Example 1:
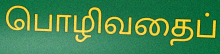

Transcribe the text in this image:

பொழிவதைப்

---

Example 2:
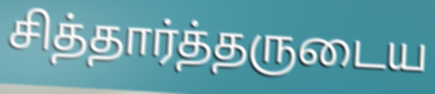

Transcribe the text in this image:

சித்தார்த்தருடைய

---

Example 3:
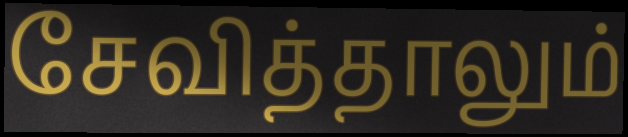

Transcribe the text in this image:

சேவித்தாலும்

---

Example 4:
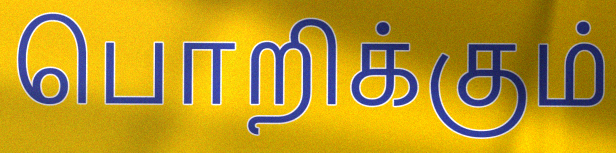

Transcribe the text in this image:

பொறிக்கும்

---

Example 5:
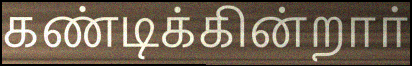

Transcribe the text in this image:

கண்டிக்கின்றார்